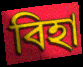
বিহা